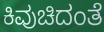
ಕಿವುಚಿದಂತೆ